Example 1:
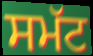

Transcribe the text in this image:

ਸਮੱਟ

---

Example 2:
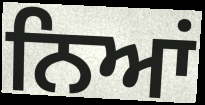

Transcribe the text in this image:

ਨਿਆਂ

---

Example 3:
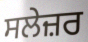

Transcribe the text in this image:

ਸਲੇਜ਼ਰ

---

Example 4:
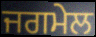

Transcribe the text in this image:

ਜਗਮੇਲ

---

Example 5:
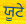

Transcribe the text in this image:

ਯੂਟੇ